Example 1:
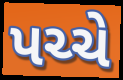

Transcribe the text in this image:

પચ્ચે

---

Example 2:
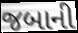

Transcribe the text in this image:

જબાની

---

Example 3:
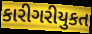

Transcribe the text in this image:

કારીગરીયુકત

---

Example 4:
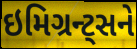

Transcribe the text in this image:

ઇમિગ્રન્ટ્સને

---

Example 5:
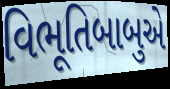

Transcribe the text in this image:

વિભૂતિબાબુએ